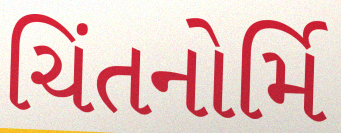
ચિંતનોર્મિ